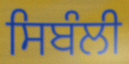
ਸਿਬੰਲੀ